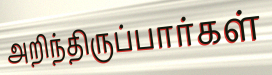
அறிந்திருப்பார்கள்